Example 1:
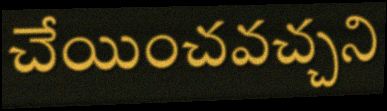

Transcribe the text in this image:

చేయించవచ్చని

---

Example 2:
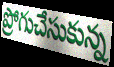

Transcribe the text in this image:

ప్రోగుచేసుకున్న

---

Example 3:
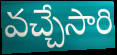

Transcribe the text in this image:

వచ్చేసారి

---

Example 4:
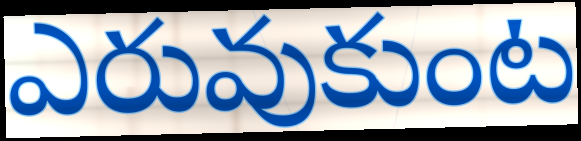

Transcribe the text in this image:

ఎరువుకుంట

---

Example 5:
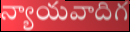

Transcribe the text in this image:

న్యాయవాదిగ